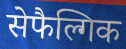
सेफैल्गिक